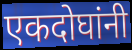
एकदोघांनी